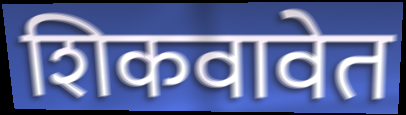
शिकवावेत